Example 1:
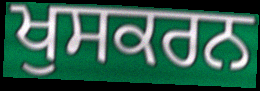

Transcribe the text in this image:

ਖੁਸਕਰਨ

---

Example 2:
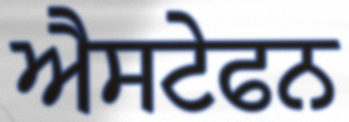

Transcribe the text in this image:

ਐਸਟੇਫਨ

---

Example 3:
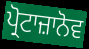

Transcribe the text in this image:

ਪ੍ਰੋਟਾਜ਼ਾਨੋਵ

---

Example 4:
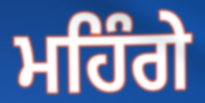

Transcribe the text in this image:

ਮਹਿੰਗੇ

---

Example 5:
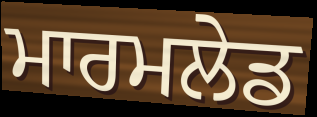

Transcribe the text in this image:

ਮਾਰਮਲੇਡ